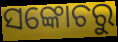
ସଙ୍କୋଚରୁ